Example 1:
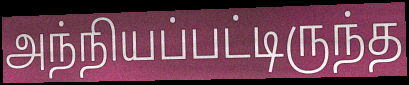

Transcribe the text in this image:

அந்நியப்பட்டிருந்த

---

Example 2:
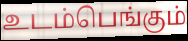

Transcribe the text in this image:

உடம்பெங்கும்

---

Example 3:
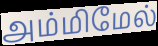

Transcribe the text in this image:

அம்மிமேல்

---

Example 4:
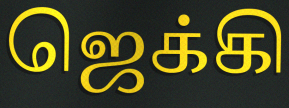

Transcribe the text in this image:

ஜெக்கி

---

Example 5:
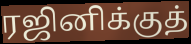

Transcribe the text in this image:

ரஜினிக்குத்